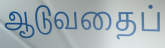
ஆடுவதைப்